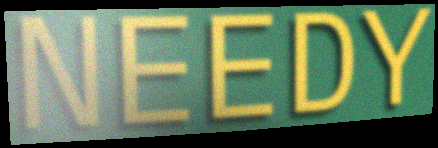
NEEDY